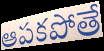
ఆపకపోతే